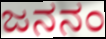
ಜನನಂ